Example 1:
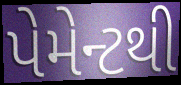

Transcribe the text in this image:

પેમેન્ટથી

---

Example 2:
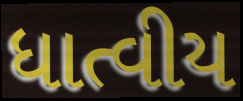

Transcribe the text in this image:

ધાત્વીય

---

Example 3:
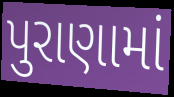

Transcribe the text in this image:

પુરાણામાં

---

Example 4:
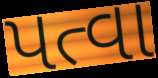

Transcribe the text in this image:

પત્વા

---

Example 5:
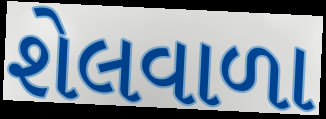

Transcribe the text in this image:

શેલવાળા